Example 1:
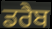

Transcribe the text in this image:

ਡਰੈਬ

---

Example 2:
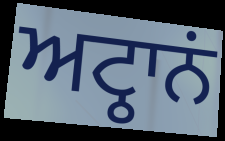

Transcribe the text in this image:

ਅਟ੍ਠਾਨਂ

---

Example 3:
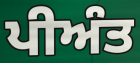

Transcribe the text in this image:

ਪੀਅੰਤ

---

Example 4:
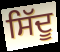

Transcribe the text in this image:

ਸਿੱਦੂ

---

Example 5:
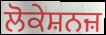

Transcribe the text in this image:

ਲੋਕੇਸ਼ਨਜ਼